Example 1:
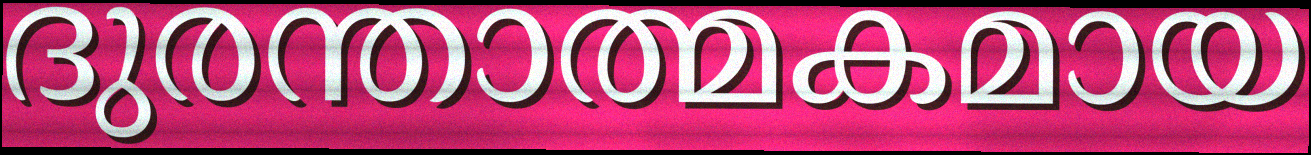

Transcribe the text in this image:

ദുരന്താത്മകമായ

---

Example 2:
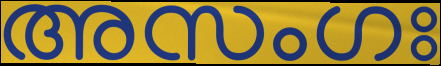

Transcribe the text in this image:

അസംഗഃ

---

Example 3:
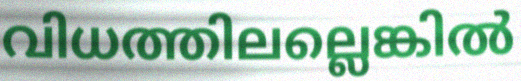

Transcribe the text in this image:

വിധത്തിലല്ലെങ്കിൽ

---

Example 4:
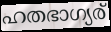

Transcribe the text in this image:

ഹതഭാഗ്യര്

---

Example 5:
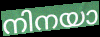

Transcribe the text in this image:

നിനയാ